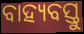
ବାହ୍ୟବସ୍ତୁ